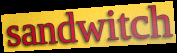
sandwitch